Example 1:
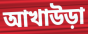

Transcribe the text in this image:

আখাউড়া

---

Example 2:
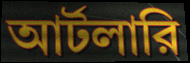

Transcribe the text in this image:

আর্টলারি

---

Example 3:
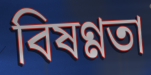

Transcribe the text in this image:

বিষণ্ণতা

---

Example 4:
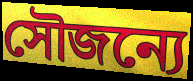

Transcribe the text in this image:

সৌজন্যে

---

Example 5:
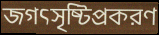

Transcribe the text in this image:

জগৎসৃষ্টিপ্রকরণ